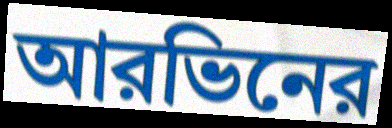
আরভিনের